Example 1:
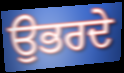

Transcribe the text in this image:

ਉਭਰਦੇ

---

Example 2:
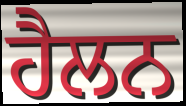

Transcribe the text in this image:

ਹੈਲਨ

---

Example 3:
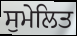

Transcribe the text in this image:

ਸੁਮੇਲਿਤ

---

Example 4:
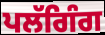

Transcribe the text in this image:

ਪਲੱਗਿੰਗ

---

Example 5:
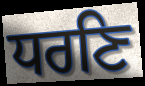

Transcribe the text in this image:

ਧਰਣਿ